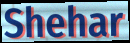
Shehar